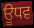
ਊਧਵ